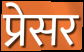
प्रेसर